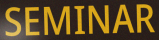
SEMINAR